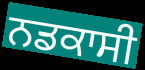
ਨਡਕਾਸੀ